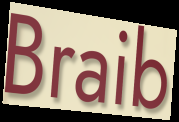
Braib